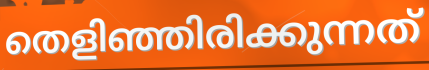
തെളിഞ്ഞിരിക്കുന്നത്